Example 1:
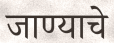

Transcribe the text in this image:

जाण्याचे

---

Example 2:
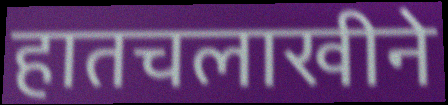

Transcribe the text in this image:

हातचलाखीने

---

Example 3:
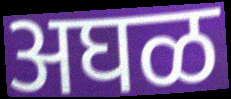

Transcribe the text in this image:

अघळ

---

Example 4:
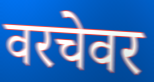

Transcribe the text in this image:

वरचेवर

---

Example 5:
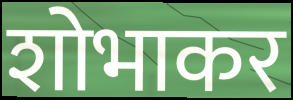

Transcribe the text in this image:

शोभाकर